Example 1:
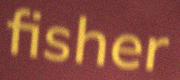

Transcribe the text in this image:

fisher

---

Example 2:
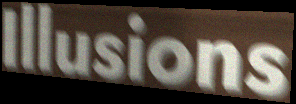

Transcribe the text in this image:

Illusions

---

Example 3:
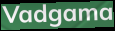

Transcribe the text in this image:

Vadgama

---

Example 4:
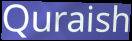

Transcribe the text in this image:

Quraish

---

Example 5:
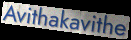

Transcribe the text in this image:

Avithakavithe